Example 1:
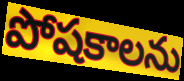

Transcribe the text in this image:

పోషకాలను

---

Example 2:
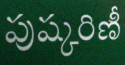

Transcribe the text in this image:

పుష్కరిణీ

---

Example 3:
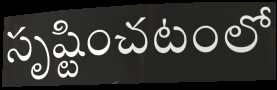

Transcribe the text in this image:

సృష్టించటంలో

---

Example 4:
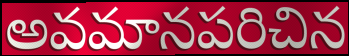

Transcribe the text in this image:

అవమానపరిచిన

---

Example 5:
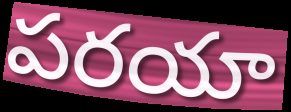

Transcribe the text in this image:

పరయా